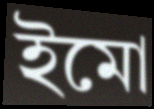
ইমো